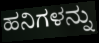
ಹನಿಗಳನ್ನು